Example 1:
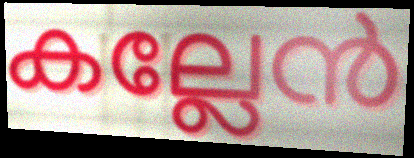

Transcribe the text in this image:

കല്ലേൻ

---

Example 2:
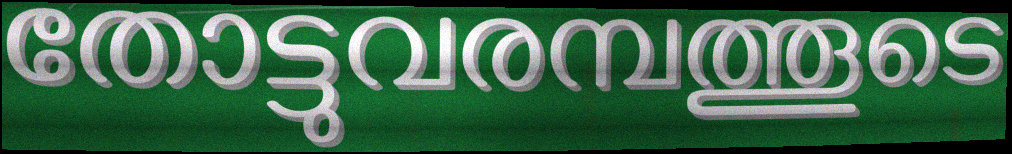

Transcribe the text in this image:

തോട്ടുവരമ്പത്തൂടെ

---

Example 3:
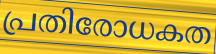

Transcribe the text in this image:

പ്രതിരോധകത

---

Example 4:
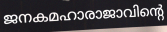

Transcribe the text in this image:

ജനകമഹാരാജാവിന്റെ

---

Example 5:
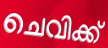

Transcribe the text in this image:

ചെവിക്ക്